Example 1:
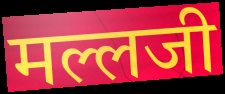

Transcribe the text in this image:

मल्लजी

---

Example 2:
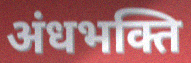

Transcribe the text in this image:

अंधभक्ति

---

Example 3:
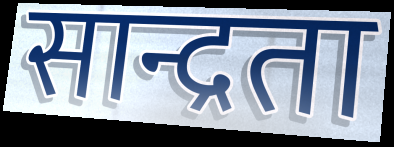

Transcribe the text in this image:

सान्द्रता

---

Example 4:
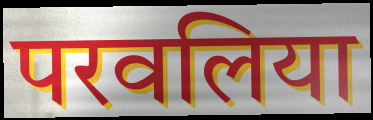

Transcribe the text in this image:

परवलिया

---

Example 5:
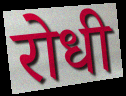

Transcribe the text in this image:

रोधी